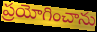
ప్రయోగించాను